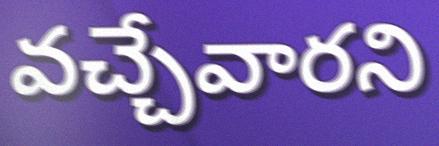
వచ్చేవారని